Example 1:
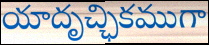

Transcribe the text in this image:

యాదృచ్ఛికముగా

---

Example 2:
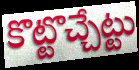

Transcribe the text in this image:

కొట్టొచ్చేట్టు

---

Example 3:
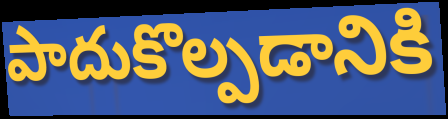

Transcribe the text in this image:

పాదుకొల్పడానికి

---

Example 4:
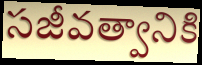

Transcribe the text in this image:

సజీవత్వానికి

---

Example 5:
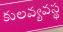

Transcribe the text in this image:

కులవ్యవస్థ